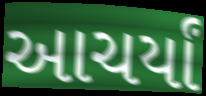
આચર્યાં